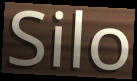
Silo